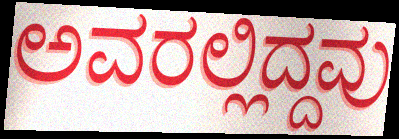
ಅವರಲ್ಲಿದ್ದವು